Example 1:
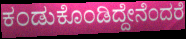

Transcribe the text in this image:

ಕಂಡುಕೊಂಡಿದ್ದೇನೆಂದರೆ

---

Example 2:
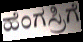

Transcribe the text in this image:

ಹೆಂಗಸ್ರಿಗೆ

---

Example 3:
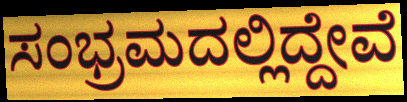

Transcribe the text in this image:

ಸಂಭ್ರಮದಲ್ಲಿದ್ದೇವೆ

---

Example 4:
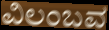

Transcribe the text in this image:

ವಿಲಂಬವ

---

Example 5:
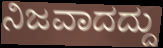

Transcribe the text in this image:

ನಿಜವಾದದ್ದು